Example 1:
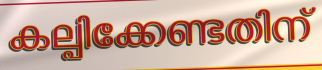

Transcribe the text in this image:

കല്പിക്കേണ്ടതിന്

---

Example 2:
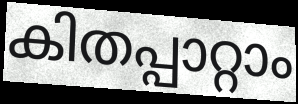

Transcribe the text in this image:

കിതപ്പാറ്റാം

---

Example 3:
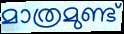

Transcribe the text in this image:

മാത്രമുണ്ട്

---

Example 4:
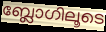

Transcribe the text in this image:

ബ്ലോഗിലൂടെ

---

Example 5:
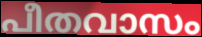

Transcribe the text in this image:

പീതവാസം